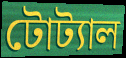
টোট্যাল